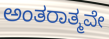
ಅಂತರಾತ್ಮವೇ